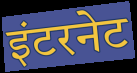
इंटरनेट